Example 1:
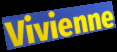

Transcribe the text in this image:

Vivienne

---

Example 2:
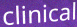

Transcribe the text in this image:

clinical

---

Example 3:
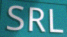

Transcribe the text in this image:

SRL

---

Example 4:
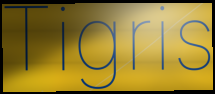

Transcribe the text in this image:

Tigris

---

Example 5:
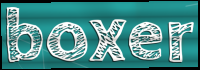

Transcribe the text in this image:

boxer